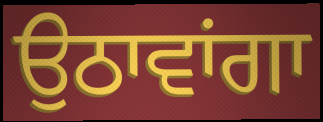
ਉਠਾਵਾਂਗਾ